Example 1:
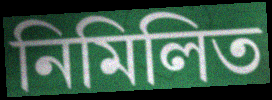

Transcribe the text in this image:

নিমিলিত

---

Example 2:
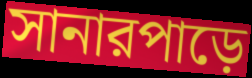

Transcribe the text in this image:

সানারপাড়ে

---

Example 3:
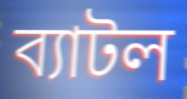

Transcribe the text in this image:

ব্যাটল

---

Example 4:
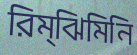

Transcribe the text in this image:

রিম্‌ঝিমিনি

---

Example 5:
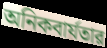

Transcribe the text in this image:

অনিকবার্যতার